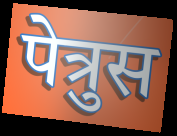
पेत्रुस